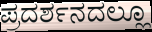
ಪ್ರದರ್ಶನದಲ್ಲೂ